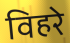
विहरे